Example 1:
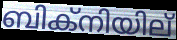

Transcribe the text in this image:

ബിക്നിയില്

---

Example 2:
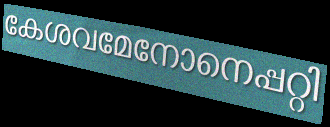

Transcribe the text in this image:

കേശവമേനോനെപ്പറ്റി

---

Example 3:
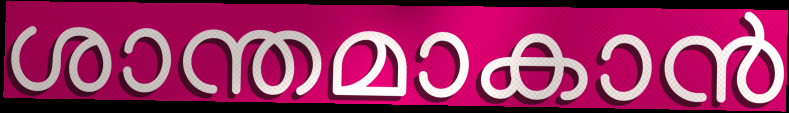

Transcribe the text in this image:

ശാന്തമാകാൻ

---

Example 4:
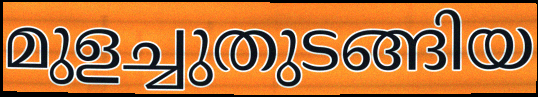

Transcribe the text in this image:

മുളച്ചുതുടങ്ങിയ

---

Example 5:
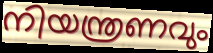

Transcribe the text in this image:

നിയന്ത്രണവും